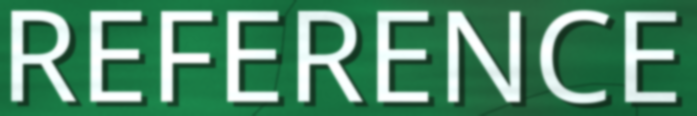
REFERENCE